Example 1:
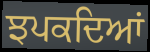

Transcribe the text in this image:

ਝਪਕਦਿਆਂ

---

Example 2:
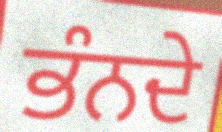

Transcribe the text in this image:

ਭੰਨਦੇ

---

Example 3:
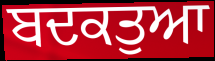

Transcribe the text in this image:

ਬਦਕਤੁਆ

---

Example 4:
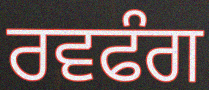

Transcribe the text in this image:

ਰਵਫੰਗ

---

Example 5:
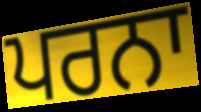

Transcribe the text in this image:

ਪਰਨਾ